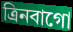
ত্রিনবাগো